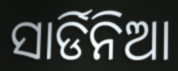
ସାର୍ଡିନିଆ